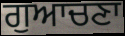
ਗੁਆਚਣਾ